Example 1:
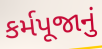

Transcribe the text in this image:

કર્મપૂજાનું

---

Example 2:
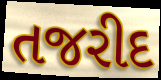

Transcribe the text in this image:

તજરીદ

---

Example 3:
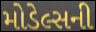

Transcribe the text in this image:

મોડેલ્સની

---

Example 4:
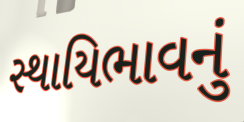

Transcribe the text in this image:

સ્થાયિભાવનું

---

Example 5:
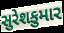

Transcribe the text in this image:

સુરેશકુમાર